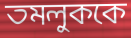
তমলুককে